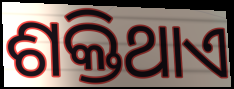
ଶକ୍ତିଥାଏ